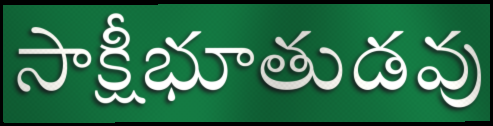
సాక్షీభూతుడవు